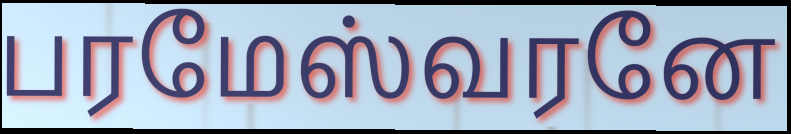
பரமேஸ்வரனே